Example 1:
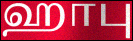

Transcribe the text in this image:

ஹாபு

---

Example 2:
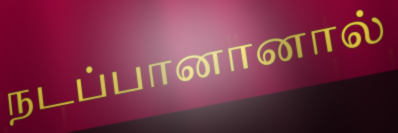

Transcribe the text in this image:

நடப்பானானால்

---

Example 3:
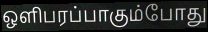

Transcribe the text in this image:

ஒளிபரப்பாகும்போது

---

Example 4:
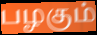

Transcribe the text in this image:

பழகும்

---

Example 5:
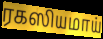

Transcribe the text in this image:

ரகஸியமாய்